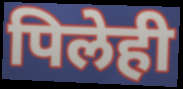
पिलेही